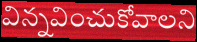
విన్నవించుకోవాలని